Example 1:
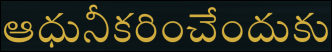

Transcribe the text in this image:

ఆధునీకరించేందుకు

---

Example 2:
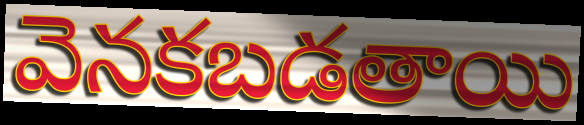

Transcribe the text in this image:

వెనకబడతాయి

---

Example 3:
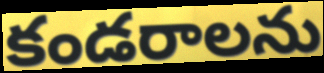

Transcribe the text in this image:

కండరాలను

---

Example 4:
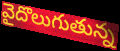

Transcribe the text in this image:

వైదొలుగుతున్న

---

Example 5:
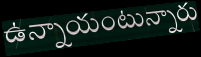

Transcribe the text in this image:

ఉన్నాయంటున్నారు